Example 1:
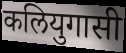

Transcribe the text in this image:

कलियुगासी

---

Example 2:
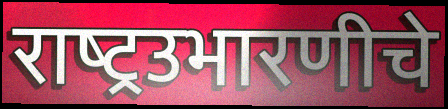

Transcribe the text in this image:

राष्ट्रउभारणीचे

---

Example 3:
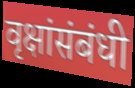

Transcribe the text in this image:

वृक्षांसंबंधी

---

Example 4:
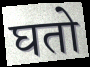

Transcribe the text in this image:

घतो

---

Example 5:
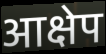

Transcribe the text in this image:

आक्षेप